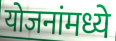
योजनांमध्ये